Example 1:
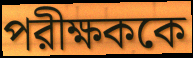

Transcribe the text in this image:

পরীক্ষককে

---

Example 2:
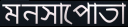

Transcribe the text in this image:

মনসাপোতা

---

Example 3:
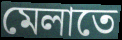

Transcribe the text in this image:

মেলাতে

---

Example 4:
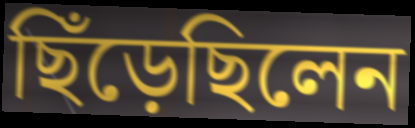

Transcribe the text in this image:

ছিঁড়েছিলেন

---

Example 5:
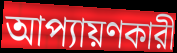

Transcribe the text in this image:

আপ্যায়ণকারী